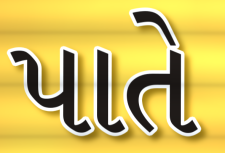
પાતે